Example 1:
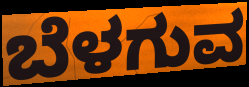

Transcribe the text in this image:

ಬೆಳಗುವ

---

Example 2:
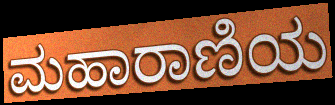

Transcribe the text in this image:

ಮಹಾರಾಣಿಯ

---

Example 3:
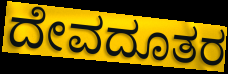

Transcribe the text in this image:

ದೇವದೂತರ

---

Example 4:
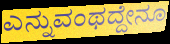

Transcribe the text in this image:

ಎನ್ನುವಂಥದ್ದೇನೂ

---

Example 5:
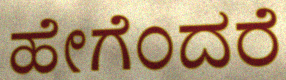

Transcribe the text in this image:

ಹೇಗೆಂದರೆ